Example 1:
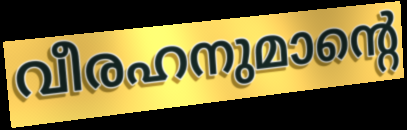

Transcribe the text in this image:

വീരഹനുമാന്റെ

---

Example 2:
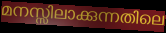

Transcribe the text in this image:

മനസ്സിലാക്കുന്നതിലെ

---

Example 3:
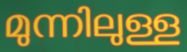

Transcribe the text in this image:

മുന്നിലുള്ള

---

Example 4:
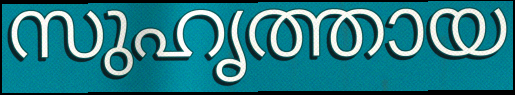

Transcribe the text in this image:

സുഹൃത്തായ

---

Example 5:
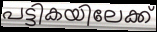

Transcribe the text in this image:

പട്ടികയിലേക്ക്